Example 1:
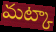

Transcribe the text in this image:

మట్కా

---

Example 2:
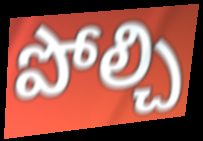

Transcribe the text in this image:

పోల్చి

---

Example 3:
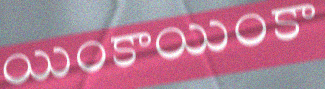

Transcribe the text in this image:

యింకాయింకా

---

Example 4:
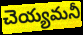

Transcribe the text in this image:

చెయ్యమనీ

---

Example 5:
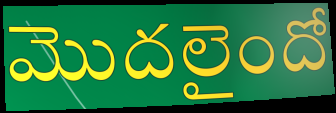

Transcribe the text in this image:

మొదలైందో